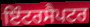
ਇੰਟਰਸੈਪਟਰ